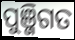
ପୁଞ୍ଜିଗତ